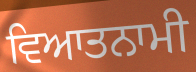
ਵਿਆਤਨਾਮੀ